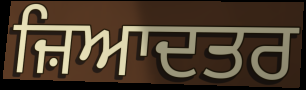
ਜ਼ਿਆਦਤਰ